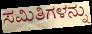
ಸಮಿತಿಗಳನ್ನು